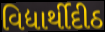
વિદ્યાર્થીદીઠ